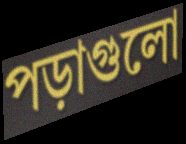
পড়াগুলো